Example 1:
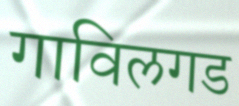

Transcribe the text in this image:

गाविलगड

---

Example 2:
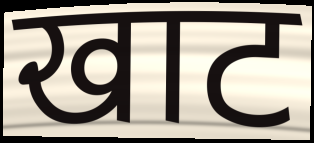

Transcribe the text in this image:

खाट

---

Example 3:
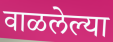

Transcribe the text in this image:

वाळलेल्या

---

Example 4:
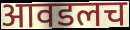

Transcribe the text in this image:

आवडलच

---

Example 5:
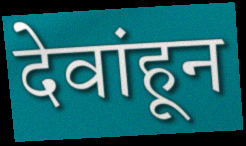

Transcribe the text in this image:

देवांहून